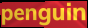
penguin